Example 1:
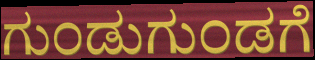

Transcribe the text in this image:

ಗುಂಡುಗುಂಡಗೆ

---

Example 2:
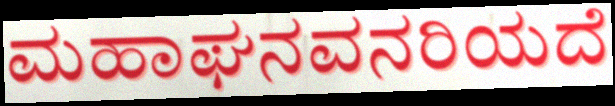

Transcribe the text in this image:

ಮಹಾಘನವನರಿಯದೆ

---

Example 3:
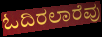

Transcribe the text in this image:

ಓದಿರಲಾರೆವು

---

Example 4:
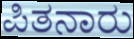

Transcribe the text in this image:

ಪಿತನಾರು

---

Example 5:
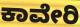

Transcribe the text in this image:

ಕಾವೇರಿ